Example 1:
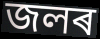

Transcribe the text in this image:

জলৰ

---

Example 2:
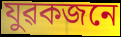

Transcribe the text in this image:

যুৱকজনে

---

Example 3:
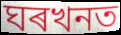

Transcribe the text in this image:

ঘৰখনত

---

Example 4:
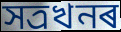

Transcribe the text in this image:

সত্ৰখনৰ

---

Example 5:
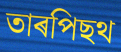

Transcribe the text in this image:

তাৰপিছথ